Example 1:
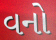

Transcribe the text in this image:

વનો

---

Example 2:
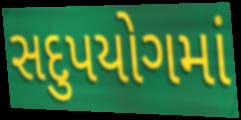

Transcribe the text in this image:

સદુપયોગમાં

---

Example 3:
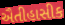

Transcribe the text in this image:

ઐતીહાસીક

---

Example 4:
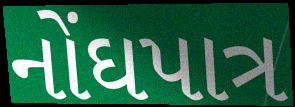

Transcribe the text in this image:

નોંઘપાત્ર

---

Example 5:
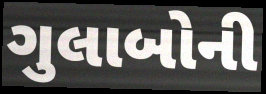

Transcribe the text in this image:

ગુલાબોની